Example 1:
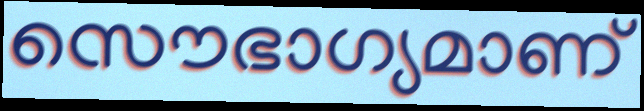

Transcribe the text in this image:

സൌഭാഗ്യമാണ്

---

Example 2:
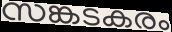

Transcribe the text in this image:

സങ്കടകരം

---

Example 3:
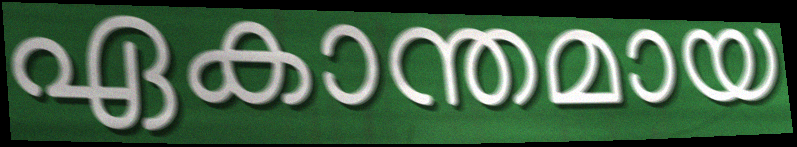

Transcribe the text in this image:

ഏകാന്തമായ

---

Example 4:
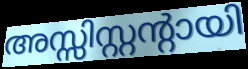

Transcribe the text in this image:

അസ്സിസ്റ്റന്റായി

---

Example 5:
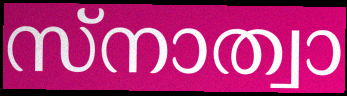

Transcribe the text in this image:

സ്നാത്വാ